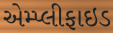
એમ્પ્લીફાઇડ